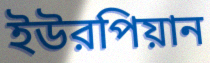
ইউরপিয়ান